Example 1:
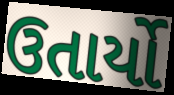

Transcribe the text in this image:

ઉતાર્યો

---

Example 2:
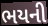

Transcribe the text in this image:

ભયની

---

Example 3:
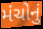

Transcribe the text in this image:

મંચોનું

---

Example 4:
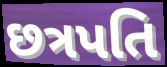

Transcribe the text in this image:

છત્રપતિ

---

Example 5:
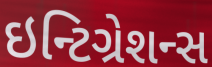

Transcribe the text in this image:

ઇન્ટિગ્રેશન્સ